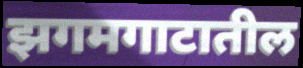
झगमगाटातील